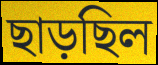
ছাড়ছিল